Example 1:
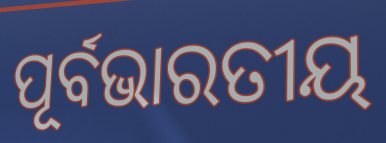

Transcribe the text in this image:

ପୂର୍ବଭାରତୀୟ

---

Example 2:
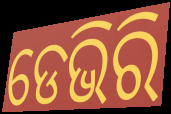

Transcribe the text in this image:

ଡେଭିରି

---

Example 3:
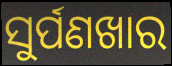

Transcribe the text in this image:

ସୁର୍ପଣଖାର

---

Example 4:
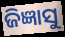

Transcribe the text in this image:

ଜିଜ୍ଞାସୁ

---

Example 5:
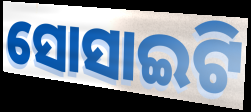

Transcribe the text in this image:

ସୋସାଇଟି